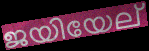
ജയിയേല്